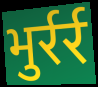
भुर्रर्र